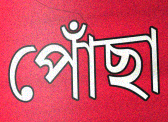
পোঁছা